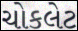
ચોકલેટ